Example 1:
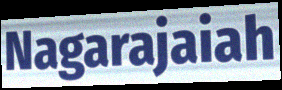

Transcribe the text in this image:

Nagarajaiah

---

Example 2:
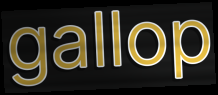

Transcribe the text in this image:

gallop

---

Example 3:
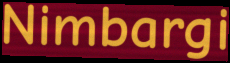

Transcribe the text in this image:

Nimbargi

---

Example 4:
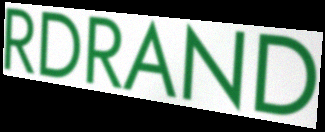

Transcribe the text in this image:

RDRAND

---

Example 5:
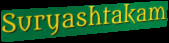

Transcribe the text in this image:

Suryashtakam